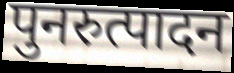
पुनरुत्पादन